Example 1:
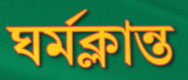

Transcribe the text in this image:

ঘর্মক্লান্ত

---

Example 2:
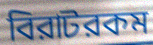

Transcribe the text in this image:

বিরাটরকম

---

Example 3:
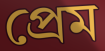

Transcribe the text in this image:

প্রেম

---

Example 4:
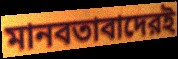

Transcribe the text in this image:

মানবতাবাদেরই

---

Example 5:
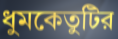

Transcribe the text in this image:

ধুমকেতুটির